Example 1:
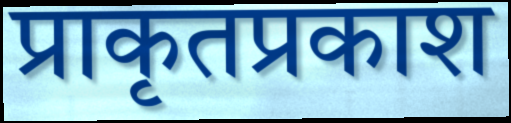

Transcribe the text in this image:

प्राकृतप्रकाश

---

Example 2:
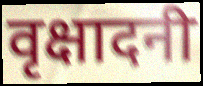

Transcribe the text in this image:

वृक्षादनी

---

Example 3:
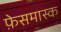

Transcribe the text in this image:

फ़ेसमास्क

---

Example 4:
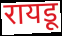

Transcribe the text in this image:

रायडू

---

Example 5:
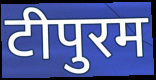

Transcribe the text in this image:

टीपुरम